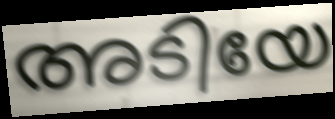
അടിയേ